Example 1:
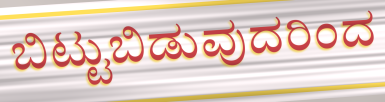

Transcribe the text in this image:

ಬಿಟ್ಟುಬಿಡುವುದರಿಂದ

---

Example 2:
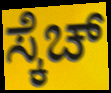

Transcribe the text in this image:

ಸ್ಕೆಚ್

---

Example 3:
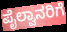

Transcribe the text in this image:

ಪೈಲ್ವಾನರಿಗೆ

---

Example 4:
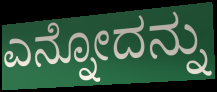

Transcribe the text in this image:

ಎನ್ನೋದನ್ನು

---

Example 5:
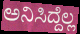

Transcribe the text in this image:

ಅನಿಸಿದ್ದೆಲ್ಲ